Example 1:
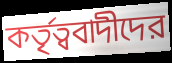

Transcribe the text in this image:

কর্তৃত্ববাদীদের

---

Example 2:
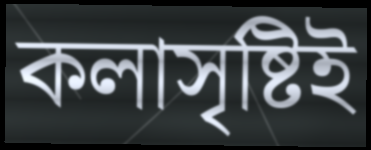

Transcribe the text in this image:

কলাসৃষ্টিই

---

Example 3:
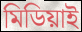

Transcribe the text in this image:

মিডিয়াই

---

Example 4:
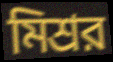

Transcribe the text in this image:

মিশ্রর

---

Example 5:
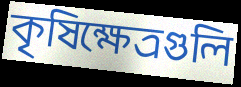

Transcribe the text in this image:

কৃষিক্ষেত্রগুলি